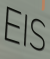
EIS